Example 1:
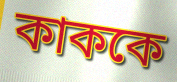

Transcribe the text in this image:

কাককে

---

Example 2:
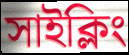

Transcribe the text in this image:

সাইক্লিং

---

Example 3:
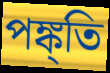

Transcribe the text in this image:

পঙ্ক্তি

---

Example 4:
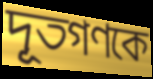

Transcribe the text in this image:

দূতগণকে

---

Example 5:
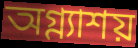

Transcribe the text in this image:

অগ্ন্যাশয়